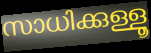
സാധിക്കുള്ളൂ